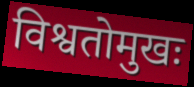
विश्वतोमुखः